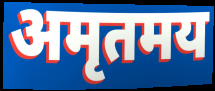
अमृतमय